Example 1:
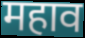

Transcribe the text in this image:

महाव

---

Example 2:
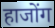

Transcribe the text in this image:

हाजोंग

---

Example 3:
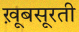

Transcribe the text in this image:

ख़ूबसूरती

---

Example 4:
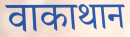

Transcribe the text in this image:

वाकाथान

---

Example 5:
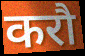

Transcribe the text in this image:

करौ